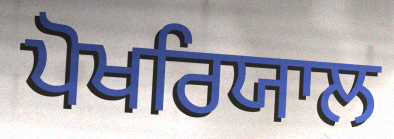
ਪੋਖਰਿਯਾਲ